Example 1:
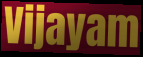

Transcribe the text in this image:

Vijayam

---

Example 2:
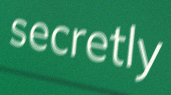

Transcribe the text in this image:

secretly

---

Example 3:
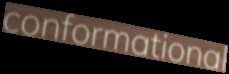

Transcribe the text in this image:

conformational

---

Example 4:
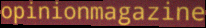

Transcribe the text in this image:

opinionmagazine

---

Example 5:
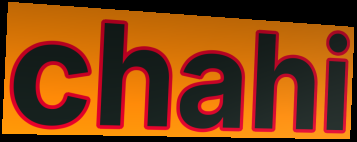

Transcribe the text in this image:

chahi